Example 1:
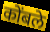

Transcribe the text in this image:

कोंबले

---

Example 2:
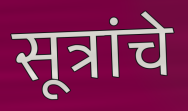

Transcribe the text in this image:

सूत्रांचे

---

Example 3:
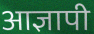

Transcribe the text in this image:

आज्ञापी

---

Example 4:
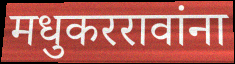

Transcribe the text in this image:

मधुकररावांना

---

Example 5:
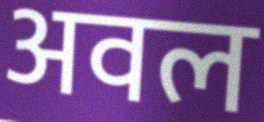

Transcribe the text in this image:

अवल